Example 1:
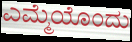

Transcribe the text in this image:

ಎಮ್ಮೆಯೊಂದು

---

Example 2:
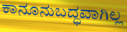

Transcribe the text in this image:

ಕಾನೂನುಬದ್ಧವಾಗಿಲ್ಲ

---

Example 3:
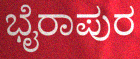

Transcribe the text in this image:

ಭೈರಾಪುರ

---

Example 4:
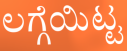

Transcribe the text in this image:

ಲಗ್ಗೆಯಿಟ್ಟ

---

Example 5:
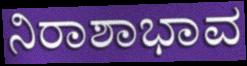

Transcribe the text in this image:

ನಿರಾಶಾಭಾವ